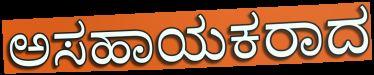
ಅಸಹಾಯಕರಾದ